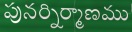
పునర్నిర్మాణము